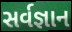
સર્વજ્ઞાન